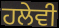
ਹਲੇਵੀ